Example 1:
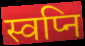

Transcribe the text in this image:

स्वप्नि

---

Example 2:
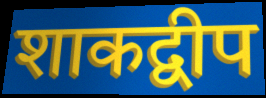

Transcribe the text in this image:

शाकद्वीप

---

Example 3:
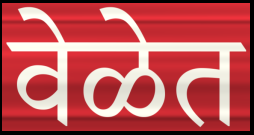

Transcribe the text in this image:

वेळेत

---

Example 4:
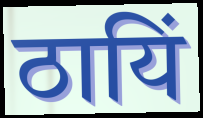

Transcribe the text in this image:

ठायिं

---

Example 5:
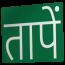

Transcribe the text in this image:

तापें